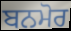
ਬਨਮੋਰ